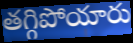
తగ్గిపోయారు